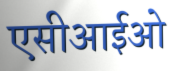
एसीआईओ